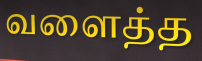
வளைத்த